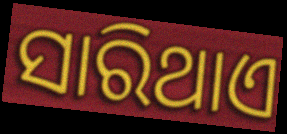
ସାରିଥାଏ